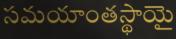
సమయాంతస్థాయై